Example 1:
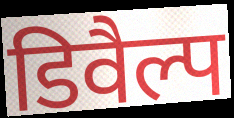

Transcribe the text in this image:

डिवैल्प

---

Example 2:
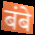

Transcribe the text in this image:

बंबे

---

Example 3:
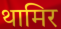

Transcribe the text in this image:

थामिर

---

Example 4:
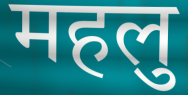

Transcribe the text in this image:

महलु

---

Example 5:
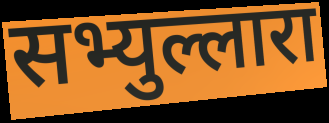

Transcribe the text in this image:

सभ्युल्लारा